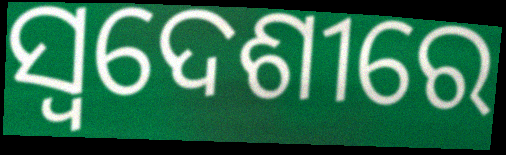
ସ୍ୱଦେଶୀରେ